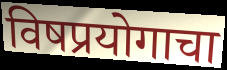
विषप्रयोगाचा